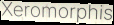
Xeromorphis